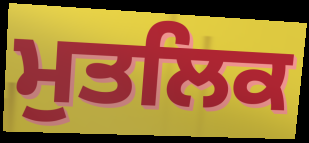
ਮੁਤਲਿਕ